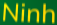
Ninh